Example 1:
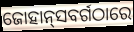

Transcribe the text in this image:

ଜୋହାନ୍‌ସବର୍ଗଠାରେ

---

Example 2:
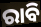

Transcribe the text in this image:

ରାବି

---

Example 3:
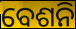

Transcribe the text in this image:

ବେଶନି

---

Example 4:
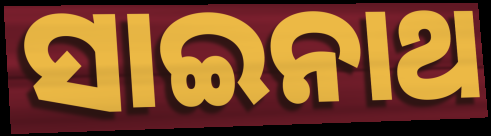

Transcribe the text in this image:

ସାଇନାଥ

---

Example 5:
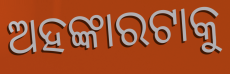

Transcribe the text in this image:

ଅହଙ୍କାରଟାକୁ